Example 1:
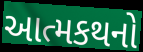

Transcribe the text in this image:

આત્મકથનો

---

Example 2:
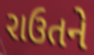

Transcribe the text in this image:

રાઉતને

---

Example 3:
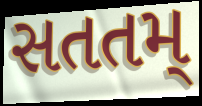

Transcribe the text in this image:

સતતમ્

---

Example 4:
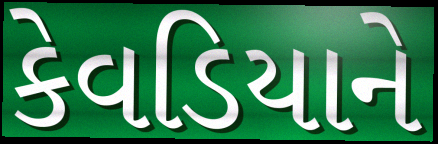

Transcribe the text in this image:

કેવડિયાને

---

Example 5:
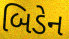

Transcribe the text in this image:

બિડેન